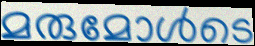
മരുമോൾടെ